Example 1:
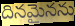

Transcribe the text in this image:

దినమైనను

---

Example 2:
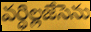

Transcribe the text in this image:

వర్ధిల్లజేసెను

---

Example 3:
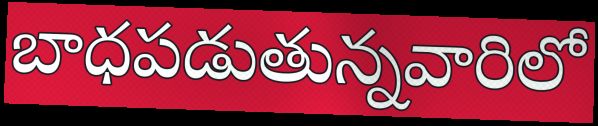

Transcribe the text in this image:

బాధపడుతున్నవారిలో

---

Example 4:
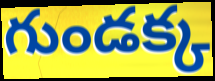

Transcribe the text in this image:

గుండక్క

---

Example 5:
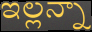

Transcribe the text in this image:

ఇల్లన్నా